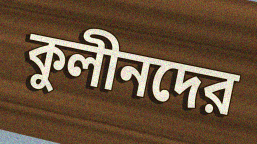
কুলীনদের